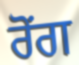
ਰੋਂਗ